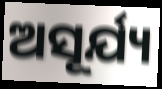
ଅସୂର୍ଯ୍ୟ